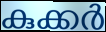
കുക്കർ